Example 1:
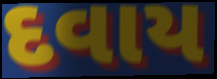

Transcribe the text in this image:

દવાય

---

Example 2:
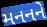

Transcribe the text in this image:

મનનને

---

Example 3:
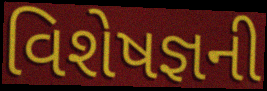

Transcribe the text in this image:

વિશેષજ્ઞની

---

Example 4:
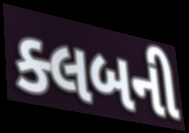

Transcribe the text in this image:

ક્લબની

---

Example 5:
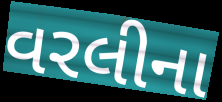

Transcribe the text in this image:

વરલીના